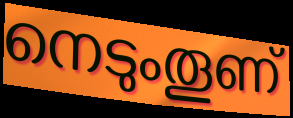
നെടുംതൂണ്